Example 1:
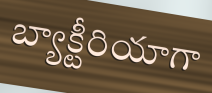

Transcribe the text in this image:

బ్యాక్టీరియాగా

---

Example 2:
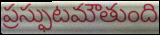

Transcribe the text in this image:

ప్రస్ఫుటమౌతుంది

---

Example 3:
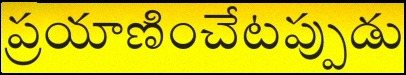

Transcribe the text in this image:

ప్రయాణించేటప్పుడు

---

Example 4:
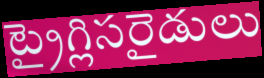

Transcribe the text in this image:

ట్రైగ్లిసరైడులు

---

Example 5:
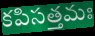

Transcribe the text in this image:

కపిసత్తమః